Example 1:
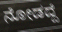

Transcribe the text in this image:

ನೋಡದ್ದೆ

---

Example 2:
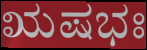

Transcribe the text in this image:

ಋಷಭಃ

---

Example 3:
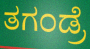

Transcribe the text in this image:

ತಗಂಡ್ರೆ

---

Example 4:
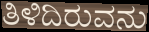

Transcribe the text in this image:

ತಿಳಿದಿರುವನು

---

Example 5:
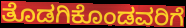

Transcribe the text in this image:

ತೊಡಗಿಕೊಂಡವರಿಗೆ